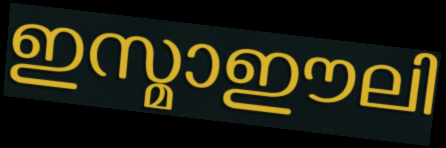
ഇസ്മാഈലി